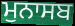
ਮੁਨਾਸਬ